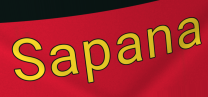
Sapana